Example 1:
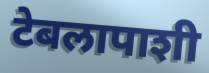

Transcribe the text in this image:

टेबलापाशी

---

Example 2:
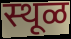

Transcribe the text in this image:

स्थूळ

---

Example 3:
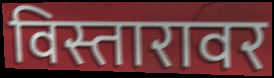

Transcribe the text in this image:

विस्तारावर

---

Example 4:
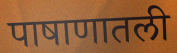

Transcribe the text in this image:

पाषाणातली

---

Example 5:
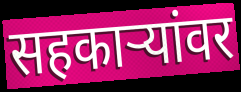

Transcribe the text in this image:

सहकार्‍यांवर